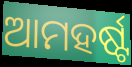
ଆମହର୍ଷ୍ଟ